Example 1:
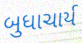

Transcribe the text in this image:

બુધાચાર્ય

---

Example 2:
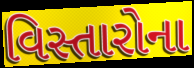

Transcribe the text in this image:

વિસ્તારોના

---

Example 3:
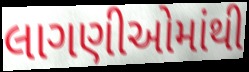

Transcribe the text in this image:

લાગણીઓમાંથી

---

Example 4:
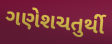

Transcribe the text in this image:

ગણેશચતુર્થી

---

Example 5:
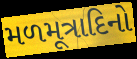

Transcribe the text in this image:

મળમૂત્રાદિનો